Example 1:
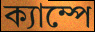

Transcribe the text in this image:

ক্যাম্পে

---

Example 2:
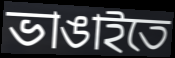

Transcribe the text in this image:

ভাঙাইতে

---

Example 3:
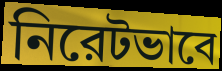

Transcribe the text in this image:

নিরেটভাবে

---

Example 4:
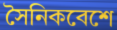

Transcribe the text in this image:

সৈনিকবেশে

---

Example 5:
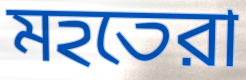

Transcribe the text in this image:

মহতেরা